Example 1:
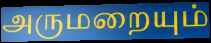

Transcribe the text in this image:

அருமறையும்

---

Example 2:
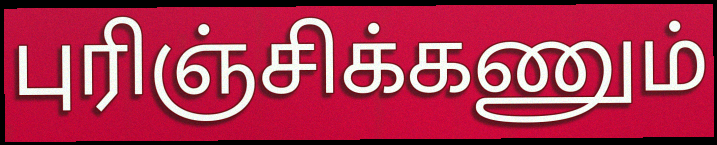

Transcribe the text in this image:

புரிஞ்சிக்கணும்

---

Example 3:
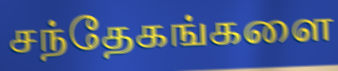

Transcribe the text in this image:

சந்தேகங்களை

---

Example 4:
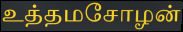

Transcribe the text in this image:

உத்தமசோழன்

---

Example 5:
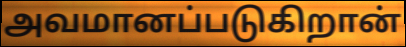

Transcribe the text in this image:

அவமானப்படுகிறான்